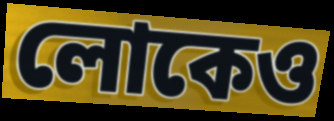
লোকেও